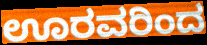
ಊರವರಿಂದ